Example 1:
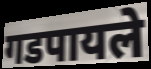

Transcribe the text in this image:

गडपायले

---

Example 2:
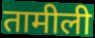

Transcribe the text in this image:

तामीली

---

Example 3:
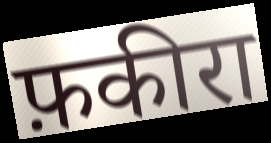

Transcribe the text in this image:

फ़कीरा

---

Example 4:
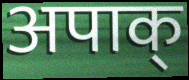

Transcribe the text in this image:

अपाक्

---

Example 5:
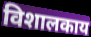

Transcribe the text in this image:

विशालकाय